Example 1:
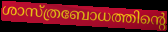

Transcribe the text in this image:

ശാസ്ത്രബോധത്തിന്റെ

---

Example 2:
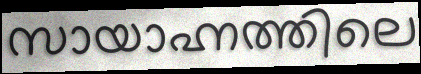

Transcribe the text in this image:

സായാഹ്നത്തിലെ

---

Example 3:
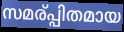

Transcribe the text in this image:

സമര്പ്പിതമായ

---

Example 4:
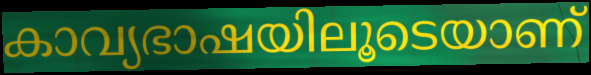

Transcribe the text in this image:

കാവ്യഭാഷയിലൂടെയാണ്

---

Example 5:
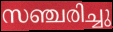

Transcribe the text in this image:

സഞ്ചരിച്ചു